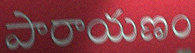
పారాయణం